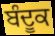
ਬੰਦੂਕ